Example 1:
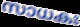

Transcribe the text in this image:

സാധകഃ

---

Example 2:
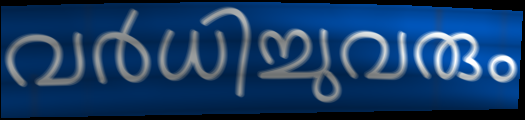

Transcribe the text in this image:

വർധിച്ചുവരും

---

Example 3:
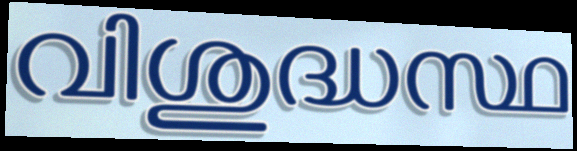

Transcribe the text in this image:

വിശുദ്ധസ്ഥ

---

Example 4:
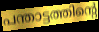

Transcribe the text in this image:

പന്താട്ടത്തിന്റെ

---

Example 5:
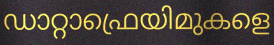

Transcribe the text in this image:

ഡാറ്റാഫ്രെയിമുകളെ